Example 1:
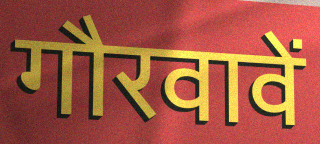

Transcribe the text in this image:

गौरवावें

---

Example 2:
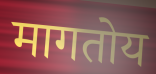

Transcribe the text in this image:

मागतोय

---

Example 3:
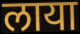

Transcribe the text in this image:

लाया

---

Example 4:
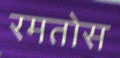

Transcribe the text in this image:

रमतोस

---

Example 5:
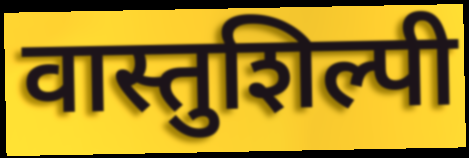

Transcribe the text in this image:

वास्तुशिल्पी